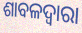
ଶାବଳଦ୍ୱାରା